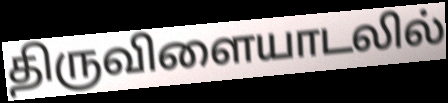
திருவிளையாடலில்